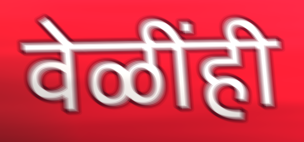
वेळींही